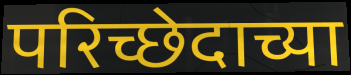
परिच्छेदाच्या